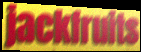
jackfruits